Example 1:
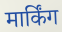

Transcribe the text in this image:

मार्किंग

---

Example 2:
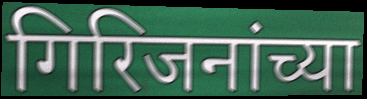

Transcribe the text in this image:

गिरिजनांच्या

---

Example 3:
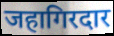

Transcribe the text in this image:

जहागिरदार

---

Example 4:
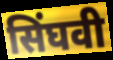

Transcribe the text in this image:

सिंघवी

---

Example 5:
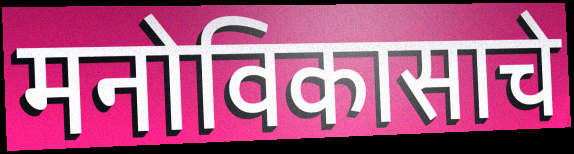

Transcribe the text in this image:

मनोविकासाचे